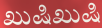
ಖುಷಿಖುಷಿ